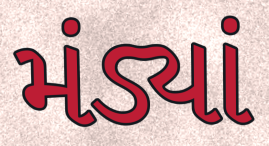
મંડ્યાં